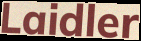
Laidler